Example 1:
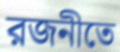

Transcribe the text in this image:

রজনীতে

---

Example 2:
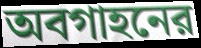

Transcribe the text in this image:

অবগাহনের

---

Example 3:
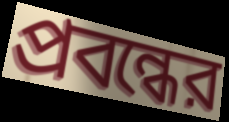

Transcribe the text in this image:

প্রবন্ধের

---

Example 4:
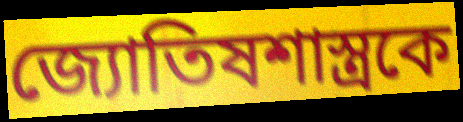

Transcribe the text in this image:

জ্যোতিষশাস্ত্রকে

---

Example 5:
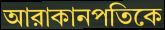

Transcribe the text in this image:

আরাকানপতিকে